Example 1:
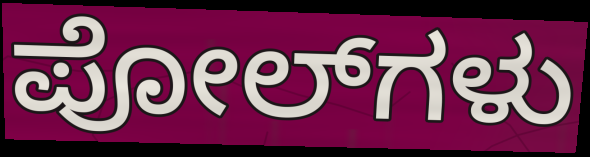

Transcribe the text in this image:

ಪೋಲ್‌ಗಳು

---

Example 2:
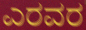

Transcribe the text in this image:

ಎರವರ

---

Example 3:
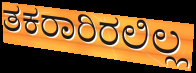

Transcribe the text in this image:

ತಕರಾರಿರಲಿಲ್ಲ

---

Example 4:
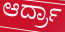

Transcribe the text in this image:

ಆರ್ದ್ರಾ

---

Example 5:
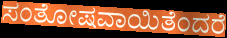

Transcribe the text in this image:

ಸಂತೋಷವಾಯಿತೆಂದರೆ